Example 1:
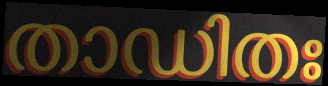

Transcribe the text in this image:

താഡിതഃ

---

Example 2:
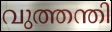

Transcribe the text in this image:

വുത്തന്തി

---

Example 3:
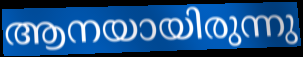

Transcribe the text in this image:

ആനയായിരുന്നു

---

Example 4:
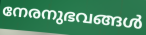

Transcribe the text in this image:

നേരനുഭവങ്ങൾ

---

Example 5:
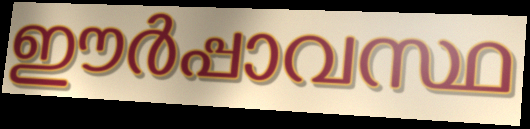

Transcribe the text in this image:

ഈർപ്പാവസ്ഥ